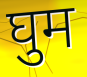
घुम